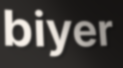
biyer